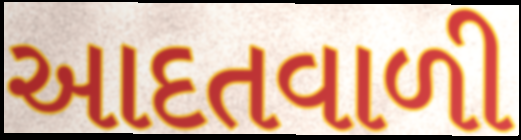
આદતવાળી